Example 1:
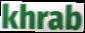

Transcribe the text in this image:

khrab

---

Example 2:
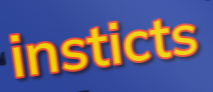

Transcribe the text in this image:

insticts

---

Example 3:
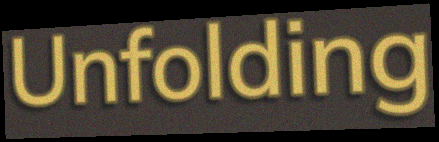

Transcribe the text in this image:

Unfolding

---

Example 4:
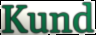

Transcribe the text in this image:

Kund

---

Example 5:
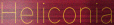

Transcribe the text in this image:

Heliconia